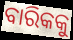
ବାରିକକୁ